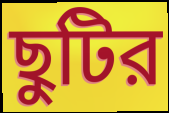
ছুটির